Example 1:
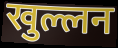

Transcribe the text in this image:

खुल्लन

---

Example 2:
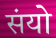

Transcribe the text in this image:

संयो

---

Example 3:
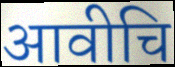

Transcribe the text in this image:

आवीचि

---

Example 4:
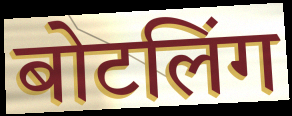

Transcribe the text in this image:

बोटलिंग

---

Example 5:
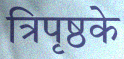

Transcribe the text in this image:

त्रिपृष्ठके